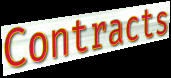
Contracts